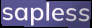
sapless